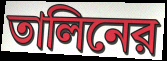
তালিনের